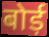
बोर्ड़